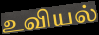
உவியல்